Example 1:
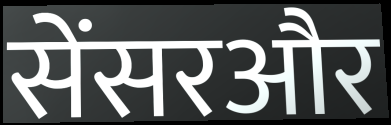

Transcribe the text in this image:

सेंसरऔर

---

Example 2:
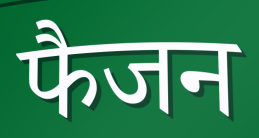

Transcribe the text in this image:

फैजन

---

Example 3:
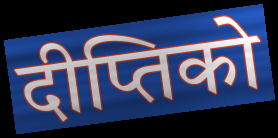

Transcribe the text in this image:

दीप्तिको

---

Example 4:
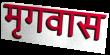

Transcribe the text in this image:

मृगवास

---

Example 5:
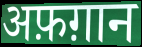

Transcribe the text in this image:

अफ़ग़ान